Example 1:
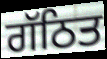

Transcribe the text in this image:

ਗੱਠਿਤ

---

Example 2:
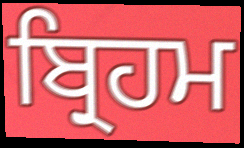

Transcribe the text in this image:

ਬ੍ਰਿਹਮ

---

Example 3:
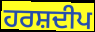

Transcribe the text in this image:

ਹਰਸ਼ਦੀਪ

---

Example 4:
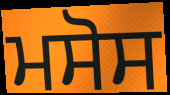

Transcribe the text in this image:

ਮਸੋਸ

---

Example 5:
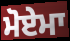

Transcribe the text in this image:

ਮੋਏਮਾ